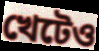
খেটেও